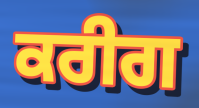
ਕਰੀਗ